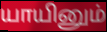
யாயினும்